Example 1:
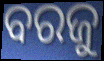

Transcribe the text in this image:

ବରଜୁ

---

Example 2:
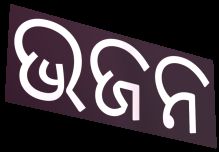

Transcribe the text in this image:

ଭଜନ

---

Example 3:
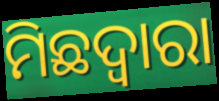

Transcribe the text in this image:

ମିଛଦ୍ଵାରା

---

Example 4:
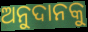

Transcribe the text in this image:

ଅନୁଦାନକୁ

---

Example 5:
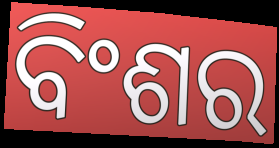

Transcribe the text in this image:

ବିଂଶର